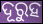
ଦୂରୁହ